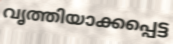
വൃത്തിയാക്കപ്പെട്ട